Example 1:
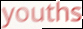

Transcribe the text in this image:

youths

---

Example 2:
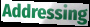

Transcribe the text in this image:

Addressing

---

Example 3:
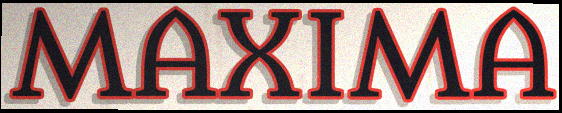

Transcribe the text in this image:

MAXIMA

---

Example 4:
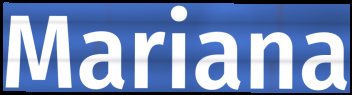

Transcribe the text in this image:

Mariana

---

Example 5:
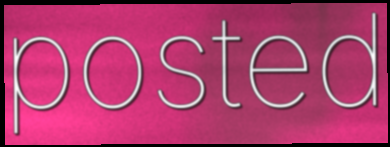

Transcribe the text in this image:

posted